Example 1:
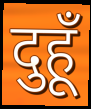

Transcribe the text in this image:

दुहूँ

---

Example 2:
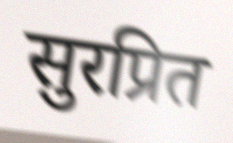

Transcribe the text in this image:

सुरप्रित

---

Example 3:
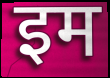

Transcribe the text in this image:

इम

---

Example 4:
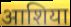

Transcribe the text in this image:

आशिया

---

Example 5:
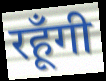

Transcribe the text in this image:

रहूँगी